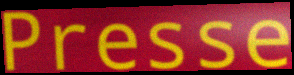
Presse